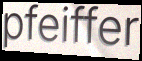
pfeiffer